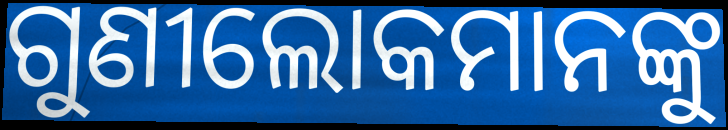
ଗୁଣୀଲୋକମାନଙ୍କୁ